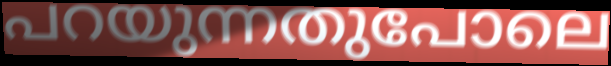
പറയുന്നതുപോലെ